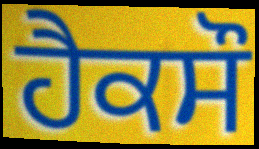
ਹੈਕਸੌ